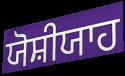
ਯੋਸ਼ੀਯਾਹ